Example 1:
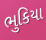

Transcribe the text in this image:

ભુકિયા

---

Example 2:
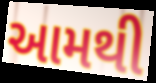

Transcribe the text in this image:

આમથી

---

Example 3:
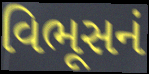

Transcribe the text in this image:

વિભૂસનં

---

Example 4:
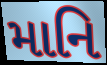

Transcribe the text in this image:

માનિ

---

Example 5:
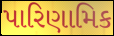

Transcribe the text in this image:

પારિણામિક